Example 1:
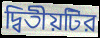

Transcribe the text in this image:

দ্বিতীয়টির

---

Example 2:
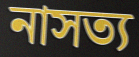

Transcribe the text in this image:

নাসত্য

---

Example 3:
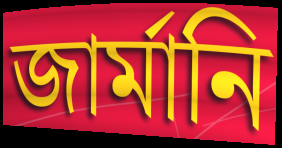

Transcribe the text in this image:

জার্মানি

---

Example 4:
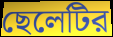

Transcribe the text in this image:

ছেলেটির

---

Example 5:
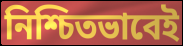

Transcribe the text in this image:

নিশ্চিতভাবেই